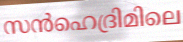
സൻഹെദ്രിമിലെ